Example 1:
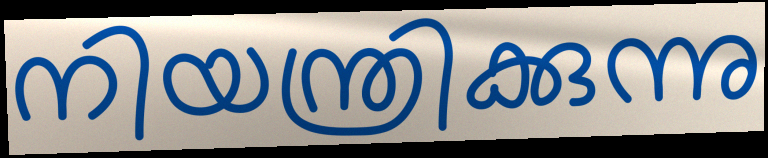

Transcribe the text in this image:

നിയന്ത്രിക്കുന്നു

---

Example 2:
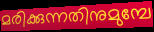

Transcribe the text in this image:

മരിക്കുന്നതിനുമുമ്പേ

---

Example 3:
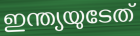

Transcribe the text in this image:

ഇന്ത്യയുടേത്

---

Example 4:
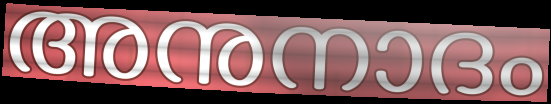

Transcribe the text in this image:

അനുനാദം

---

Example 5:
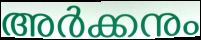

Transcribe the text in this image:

അർക്കനും